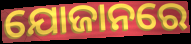
ଯୋଜାନରେ